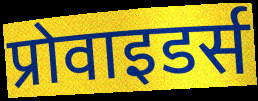
प्रोवाइडर्स